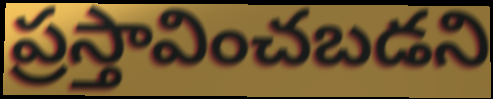
ప్రస్తావించబడని